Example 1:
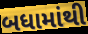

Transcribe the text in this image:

બધામાંથી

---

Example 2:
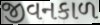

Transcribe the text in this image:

જીવનકાળ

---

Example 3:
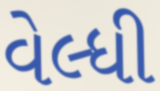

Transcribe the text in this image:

વેલ્ધી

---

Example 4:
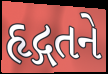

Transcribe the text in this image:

હૃદ્ગતને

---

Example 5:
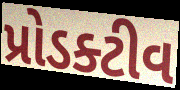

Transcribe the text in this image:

પ્રોડક્ટીવ